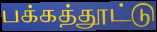
பக்கத்தூட்டு